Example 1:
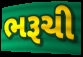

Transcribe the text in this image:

ભરૂચી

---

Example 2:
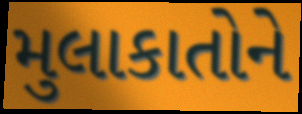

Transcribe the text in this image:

મુલાકાતોને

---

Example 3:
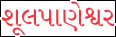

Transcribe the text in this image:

શૂલપાણેશ્વર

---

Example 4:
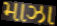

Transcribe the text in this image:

માઝા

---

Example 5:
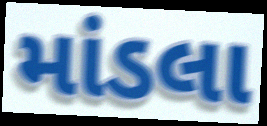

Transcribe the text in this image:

માંડલા